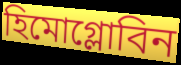
হিমোগ্লোবিন